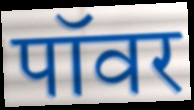
पॉवर